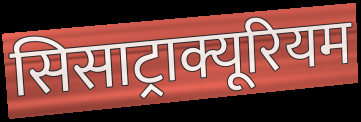
सिसाट्राक्यूरियम